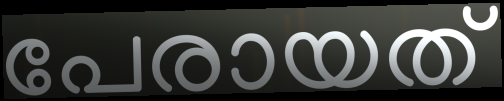
പേരായത്